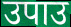
उपाउ